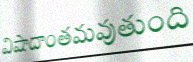
విషాదాంతమవుతుంది